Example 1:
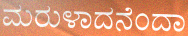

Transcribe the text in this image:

ಮರುಳಾದನೆಂದಾ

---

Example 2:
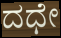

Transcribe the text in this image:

ದಧೇ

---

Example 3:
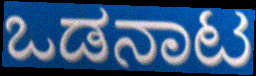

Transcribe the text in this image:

ಒಡನಾಟ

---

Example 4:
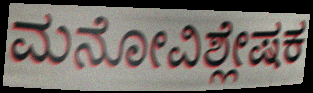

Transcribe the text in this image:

ಮನೋವಿಶ್ಲೇಷಕ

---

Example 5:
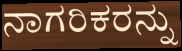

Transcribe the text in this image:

ನಾಗರಿಕರನ್ನು